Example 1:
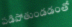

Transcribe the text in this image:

పడిపోతుండడంతో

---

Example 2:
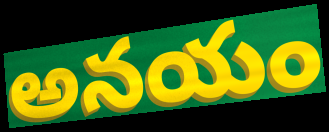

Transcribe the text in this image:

అనయం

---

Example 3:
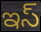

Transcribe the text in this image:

ఇస్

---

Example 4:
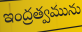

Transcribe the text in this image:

ఇంద్రత్వమును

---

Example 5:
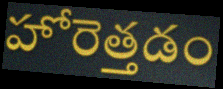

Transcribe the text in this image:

హోరెత్తడం